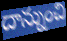
దాన్నుంచి